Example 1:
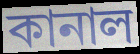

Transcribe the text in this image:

কানাল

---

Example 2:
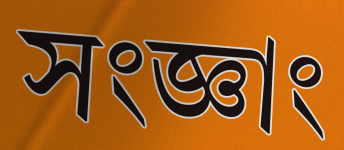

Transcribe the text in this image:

সংজ্ঞাং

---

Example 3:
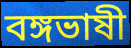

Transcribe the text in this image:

বঙ্গভাষী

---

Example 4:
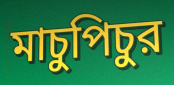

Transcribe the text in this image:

মাচুপিচুর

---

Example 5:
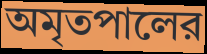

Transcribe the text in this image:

অমৃতপালের